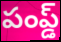
పంప్డ్